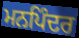
ਮਨਪਿੰਦਰ